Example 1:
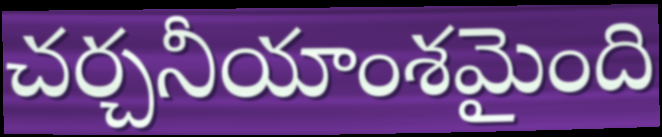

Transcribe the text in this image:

చర్చనీయాంశమైంది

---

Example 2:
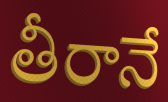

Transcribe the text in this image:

తీరానే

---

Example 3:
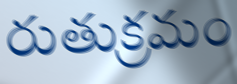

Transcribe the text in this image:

రుతుక్రమం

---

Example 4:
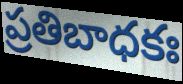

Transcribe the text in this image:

ప్రతిబాధకః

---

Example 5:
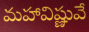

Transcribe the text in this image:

మహావిష్ణువే